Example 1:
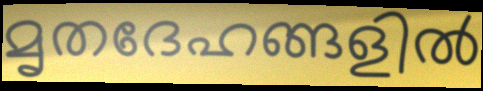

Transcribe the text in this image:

മൃതദേഹങ്ങളിൽ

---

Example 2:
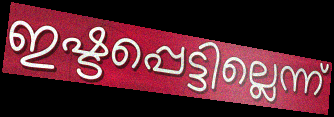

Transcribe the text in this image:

ഇഷ്ടപ്പെട്ടില്ലെന്ന്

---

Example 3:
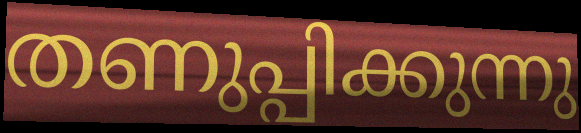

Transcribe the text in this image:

തണുപ്പിക്കുന്നു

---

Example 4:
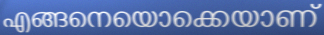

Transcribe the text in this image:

എങ്ങനെയൊക്കെയാണ്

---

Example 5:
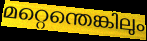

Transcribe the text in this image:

മറ്റെന്തെങ്കിലും